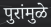
पुरांमुळे